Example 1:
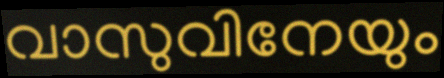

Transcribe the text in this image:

വാസുവിനേയും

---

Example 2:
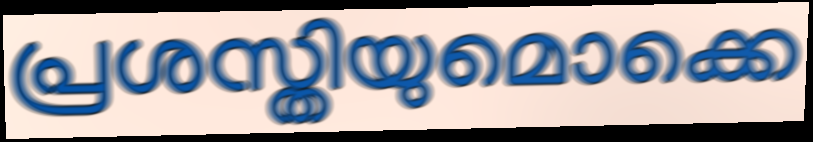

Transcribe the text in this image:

പ്രശസ്തിയുമൊക്കെ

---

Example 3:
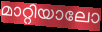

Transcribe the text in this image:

മാറ്റിയാലോ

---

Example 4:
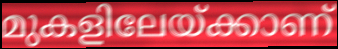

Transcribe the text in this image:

മുകളിലേയ്ക്കാണ്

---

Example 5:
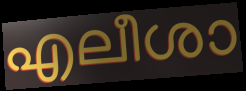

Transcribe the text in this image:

എലീശാ